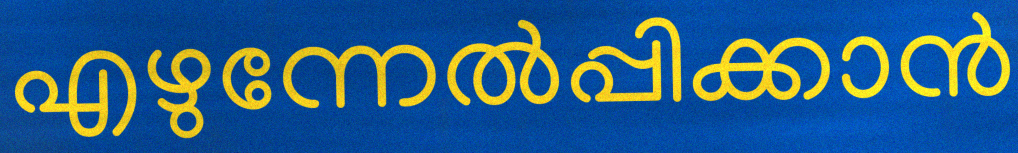
എഴുന്നേൽപ്പിക്കാൻ